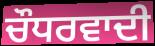
ਚੌਧਰਵਾਦੀ